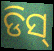
ଡିସ୍